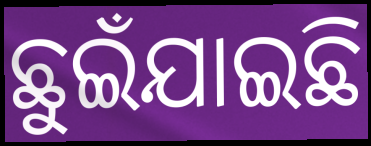
ଛୁଇଁଯାଇଛି